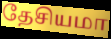
தேசியமா